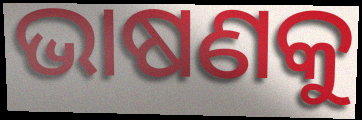
ଭାଷଣକୁ